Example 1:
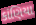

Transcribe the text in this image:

કાંણિયા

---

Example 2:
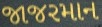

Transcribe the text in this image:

જાજરમાન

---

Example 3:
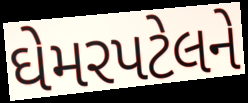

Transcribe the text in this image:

ઘેમરપટેલને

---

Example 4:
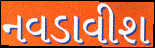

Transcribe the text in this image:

નવડાવીશ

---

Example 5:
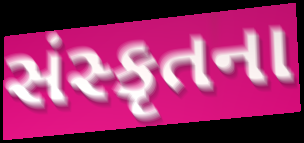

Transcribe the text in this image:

સંસ્કૃતના